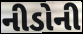
નીડોની